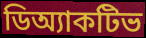
ডিঅ্যাকটিভ